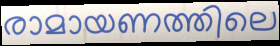
രാമായണത്തിലെ